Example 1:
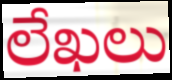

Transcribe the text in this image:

లేఖలు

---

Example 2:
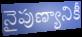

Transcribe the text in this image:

నైపుణ్యానికీ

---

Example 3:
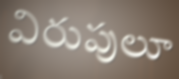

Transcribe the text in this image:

విరుపులూ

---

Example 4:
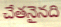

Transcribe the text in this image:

చేతనైనది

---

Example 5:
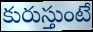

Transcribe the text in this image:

కురుస్తుంటే